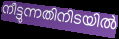
നീട്ടുന്നതിനിടയിൽ